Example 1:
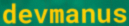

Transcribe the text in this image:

devmanus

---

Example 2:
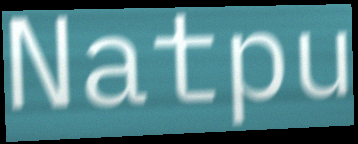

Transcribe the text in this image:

Natpu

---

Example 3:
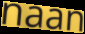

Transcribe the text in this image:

naan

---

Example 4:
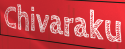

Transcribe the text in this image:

Chivaraku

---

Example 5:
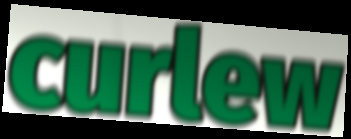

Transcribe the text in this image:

curlew